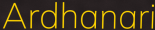
Ardhanari